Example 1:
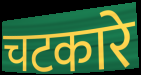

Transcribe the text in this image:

चटकारे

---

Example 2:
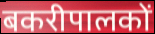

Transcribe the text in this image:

बकरीपालकों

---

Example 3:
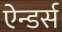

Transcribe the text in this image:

ऐन्डर्स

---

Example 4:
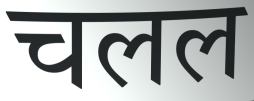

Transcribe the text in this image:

चलल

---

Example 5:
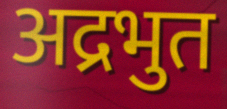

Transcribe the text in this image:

अद्रभुत